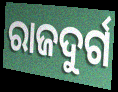
ରାଜଦୁର୍ଗ